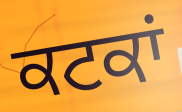
ਕਟਕਾਂ